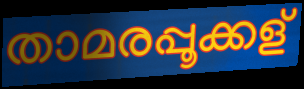
താമരപ്പൂക്കള്